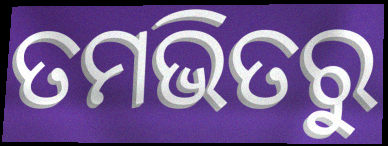
ତମଭିତରୁ